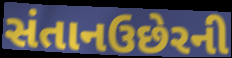
સંતાનઉછેરની